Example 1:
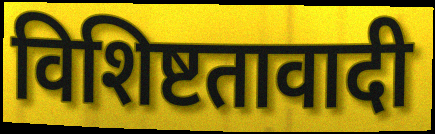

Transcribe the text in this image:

विशिष्टतावादी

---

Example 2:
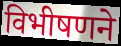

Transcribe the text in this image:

विभीषणने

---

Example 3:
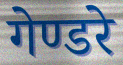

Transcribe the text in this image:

गेण्डरे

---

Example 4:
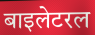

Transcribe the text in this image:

बाइलेटरल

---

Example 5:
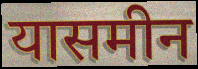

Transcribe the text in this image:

यासमीन